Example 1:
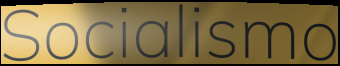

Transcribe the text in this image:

Socialismo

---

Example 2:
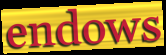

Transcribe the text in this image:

endows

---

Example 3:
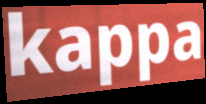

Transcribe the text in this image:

kappa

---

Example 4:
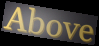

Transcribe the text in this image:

Above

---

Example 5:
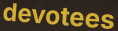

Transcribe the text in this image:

devotees